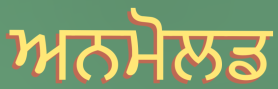
ਅਨਮੋਲਡ